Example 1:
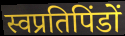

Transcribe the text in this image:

स्वप्रतिपिंडों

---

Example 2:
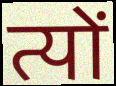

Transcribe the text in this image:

त्यों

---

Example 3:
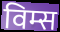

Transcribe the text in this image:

विम्स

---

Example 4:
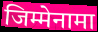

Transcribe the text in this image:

जिम्मेनामा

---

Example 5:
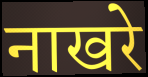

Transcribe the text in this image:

नाखरे